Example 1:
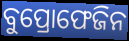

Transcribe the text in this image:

ବୁପ୍ରୋଫେଜିନ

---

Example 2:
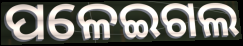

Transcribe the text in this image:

ପଳେଇଗଲ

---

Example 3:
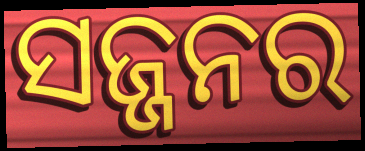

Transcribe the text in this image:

ସଜ୍ଜନର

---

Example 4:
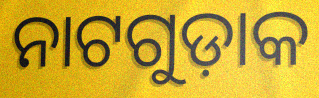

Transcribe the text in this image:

ନାଟଗୁଡ଼ାକ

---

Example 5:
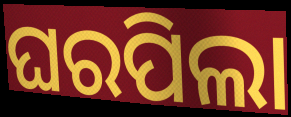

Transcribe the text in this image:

ଘରପିଲା